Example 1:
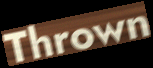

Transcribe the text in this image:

Thrown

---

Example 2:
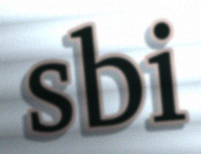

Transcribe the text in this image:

sbi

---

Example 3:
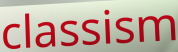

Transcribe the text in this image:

classism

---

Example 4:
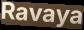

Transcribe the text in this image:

Ravaya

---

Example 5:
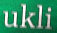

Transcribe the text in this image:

ukli